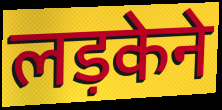
लड़केने